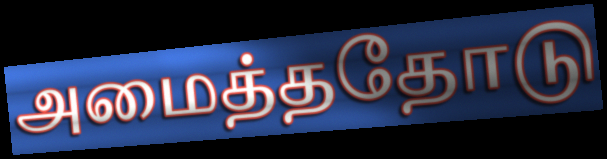
அமைத்ததோடு